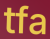
tfa